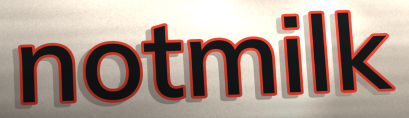
notmilk